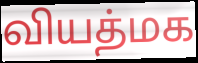
வியத்மக